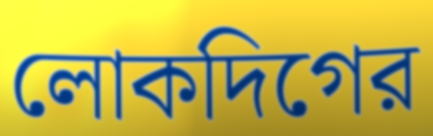
লোকদিগের